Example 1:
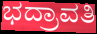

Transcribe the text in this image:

ಭದ್ರಾವತಿ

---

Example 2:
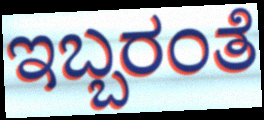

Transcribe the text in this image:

ಇಬ್ಬರಂತೆ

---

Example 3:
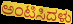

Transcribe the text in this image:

ಅಂಟಿಸಿದಳು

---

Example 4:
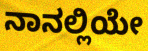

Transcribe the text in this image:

ನಾನಲ್ಲಿಯೇ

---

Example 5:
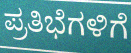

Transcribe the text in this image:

ಪ್ರತಿಭೆಗಳಿಗೆ